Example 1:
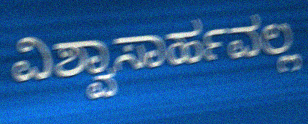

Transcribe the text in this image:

ವಿಶ್ವಾಸಾರ್ಹವಲ್ಲ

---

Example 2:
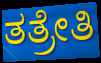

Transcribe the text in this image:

ತತ್ರೇತಿ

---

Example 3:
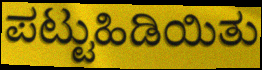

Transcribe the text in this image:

ಪಟ್ಟುಹಿಡಿಯಿತು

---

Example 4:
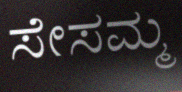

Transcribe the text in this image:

ಸೇಸಮ್ಮ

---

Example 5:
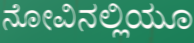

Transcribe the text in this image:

ನೋವಿನಲ್ಲಿಯೂ